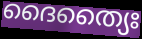
ദൈത്യൈഃ